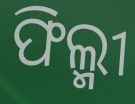
ଫିଲ୍ମୀ